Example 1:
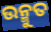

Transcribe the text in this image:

ଉନ୍ମୁତ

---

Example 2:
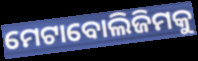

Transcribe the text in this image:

ମେଟାବୋଲିଜିମକୁ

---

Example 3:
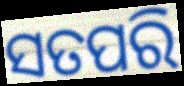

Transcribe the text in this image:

ସତପରି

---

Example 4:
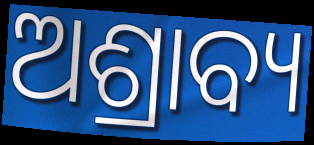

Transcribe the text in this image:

ଅଶ୍ରାବ୍ୟ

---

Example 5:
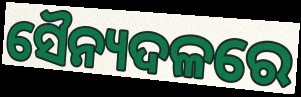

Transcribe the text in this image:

ସୈନ୍ୟଦଳରେ